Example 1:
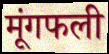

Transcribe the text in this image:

मूंगफली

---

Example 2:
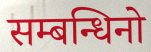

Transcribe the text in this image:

सम्बन्धिनो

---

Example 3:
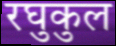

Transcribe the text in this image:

रघुकुल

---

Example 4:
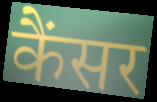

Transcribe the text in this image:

कैंसर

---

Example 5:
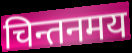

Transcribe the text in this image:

चिन्तनमय